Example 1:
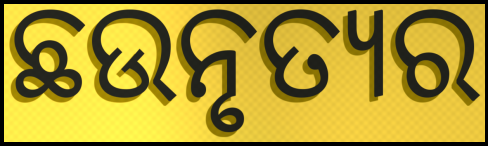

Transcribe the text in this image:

ଛଉନୃତ୍ୟର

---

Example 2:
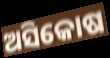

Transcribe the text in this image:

ଅସିକୋଷ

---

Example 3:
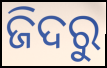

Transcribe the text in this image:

ଜିଦରୁ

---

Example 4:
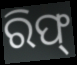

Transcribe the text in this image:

ରିଫ୍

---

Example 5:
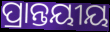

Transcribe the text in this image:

ପ୍ରାନ୍ତୟୀୟ